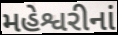
મહેશ્વરીનાં